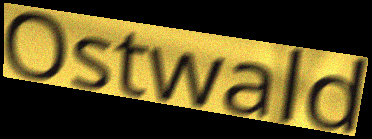
Ostwald